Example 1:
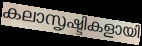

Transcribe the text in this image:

കലാസൃഷ്ടികളായി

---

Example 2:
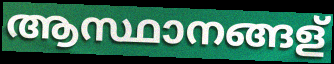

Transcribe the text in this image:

ആസ്ഥാനങ്ങള്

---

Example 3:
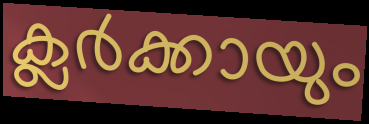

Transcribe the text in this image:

ക്ലർക്കായും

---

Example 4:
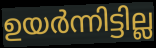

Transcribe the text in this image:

ഉയർന്നിട്ടില്ല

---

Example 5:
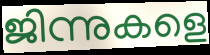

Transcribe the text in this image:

ജിന്നുകളെ